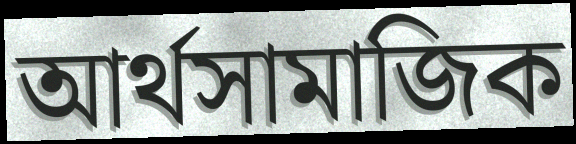
আৰ্থসামাজিক